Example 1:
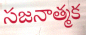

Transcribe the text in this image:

సజనాత్మక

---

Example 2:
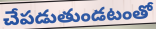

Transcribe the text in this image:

చేపడుతుండటంతో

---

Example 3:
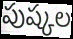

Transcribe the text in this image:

పుష్కల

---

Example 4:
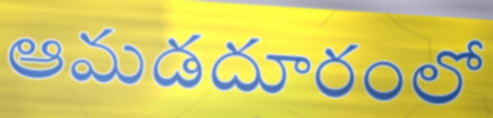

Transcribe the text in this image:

ఆమడదూరంలో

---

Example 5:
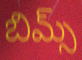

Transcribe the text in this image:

బిమ్స్